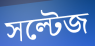
সল্টেজ